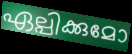
ഏല്പിക്കുമോ